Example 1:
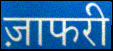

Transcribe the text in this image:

ज़ाफरी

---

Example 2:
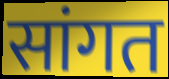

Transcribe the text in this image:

सांगत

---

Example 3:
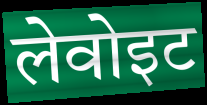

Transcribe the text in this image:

लेवोइट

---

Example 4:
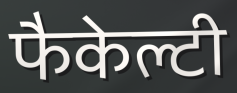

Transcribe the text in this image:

फैकेल्टी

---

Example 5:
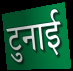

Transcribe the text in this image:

टुनाई